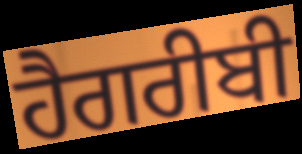
ਹੈਗਰੀਬੀ